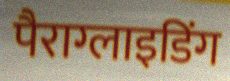
पैराग्लाइडिंग